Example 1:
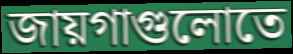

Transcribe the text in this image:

জায়গাগুলোতে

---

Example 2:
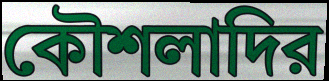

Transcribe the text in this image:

কৌশলাদির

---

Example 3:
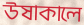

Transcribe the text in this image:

উষাকালে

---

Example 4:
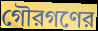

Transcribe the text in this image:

গৌরগণের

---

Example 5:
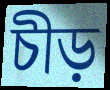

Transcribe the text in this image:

চীড়